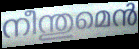
നീന്തുമെൻ